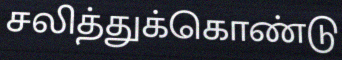
சலித்துக்கொண்டு